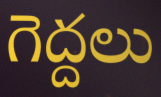
గెద్దలు